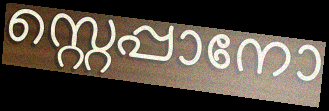
സ്റ്റെപ്പാനോ